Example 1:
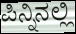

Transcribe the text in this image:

ಪಿನ್ನಿನಲ್ಲಿ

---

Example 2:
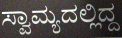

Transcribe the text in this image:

ಸ್ವಾಮ್ಯದಲ್ಲಿದ್ದ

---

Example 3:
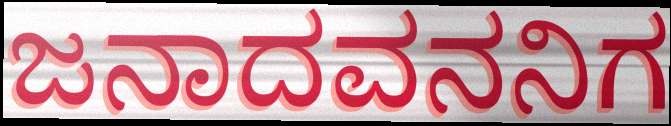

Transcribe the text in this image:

ಜನಾದವನನಿಗ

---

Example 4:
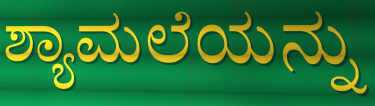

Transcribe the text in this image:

ಶ್ಯಾಮಲೆಯನ್ನು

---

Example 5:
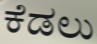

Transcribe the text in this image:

ಕೆಡಲು